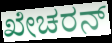
ಖೇಚರನ್